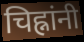
चिह्नांनी